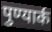
पुण्यार्क